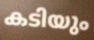
കടിയും